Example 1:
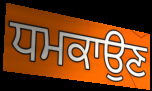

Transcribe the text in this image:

ਧਮਕਾਉਣ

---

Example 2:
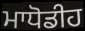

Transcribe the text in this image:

ਮਾਧੋਡੀਹ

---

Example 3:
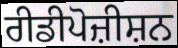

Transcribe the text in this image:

ਰੀਡੀਪੋਜ਼ੀਸ਼ਨ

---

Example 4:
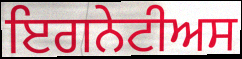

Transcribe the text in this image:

ਇਗਨੇਟੀਅਸ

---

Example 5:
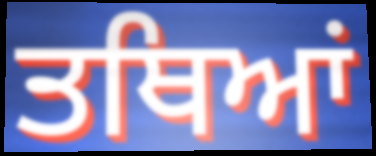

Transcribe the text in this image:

ਤਥਿਆਂ